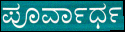
ಪೂರ್ವಾರ್ಧ